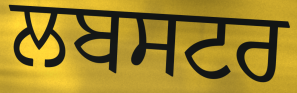
ਲਬਸਟਰ